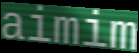
aimim